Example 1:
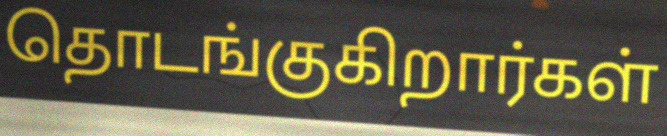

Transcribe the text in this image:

தொடங்குகிறார்கள்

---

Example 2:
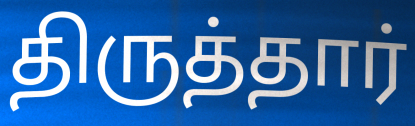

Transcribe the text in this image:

திருத்தார்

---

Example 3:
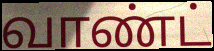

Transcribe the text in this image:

வாண்ட்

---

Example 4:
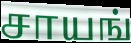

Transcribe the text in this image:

சாயங்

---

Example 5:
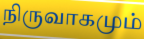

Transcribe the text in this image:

நிருவாகமும்